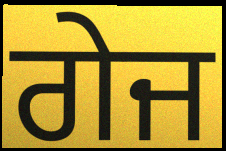
ਗੇਜ